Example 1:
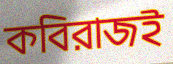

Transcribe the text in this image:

কবিরাজই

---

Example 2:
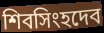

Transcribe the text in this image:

শিবসিংহদেব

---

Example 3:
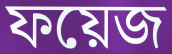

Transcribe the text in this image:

ফয়েজ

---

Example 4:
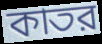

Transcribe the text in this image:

কাতর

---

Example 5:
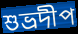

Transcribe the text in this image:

শুভ্রদীপ